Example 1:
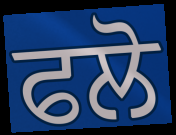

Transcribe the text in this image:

ਫਲੋ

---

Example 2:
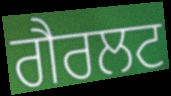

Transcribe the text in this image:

ਗੈਰਲਟ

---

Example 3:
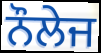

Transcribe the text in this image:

ਨੌਲੇਜ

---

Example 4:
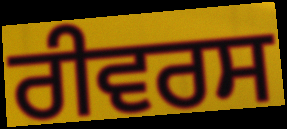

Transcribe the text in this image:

ਰੀਵਰਸ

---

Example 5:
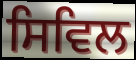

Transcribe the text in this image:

ਸਿਵਿਲ